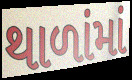
થાળાંમાં